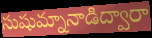
సుషుమ్నానాడిద్వారా